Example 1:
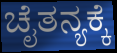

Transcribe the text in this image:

ಚೈತನ್ಯಕ್ಕೆ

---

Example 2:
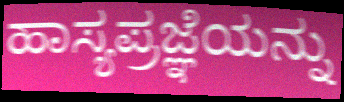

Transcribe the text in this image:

ಹಾಸ್ಯಪ್ರಜ್ಞೆಯನ್ನು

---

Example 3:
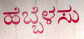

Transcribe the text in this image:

ಹೆಬ್ಬೆಳಸು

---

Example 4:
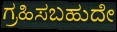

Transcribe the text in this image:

ಗ್ರಹಿಸಬಹುದೇ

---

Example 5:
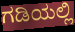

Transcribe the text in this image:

ಗಡಿಯಲ್ಲಿ